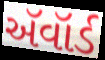
ઍવૉર્ડ